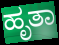
ಹೃತಾ